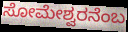
ಸೋಮೇಶ್ವರನೆಂಬ